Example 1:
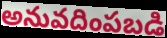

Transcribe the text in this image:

అనువదింపబడి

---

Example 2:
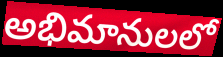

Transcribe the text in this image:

అభిమానులలో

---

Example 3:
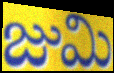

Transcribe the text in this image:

జుమి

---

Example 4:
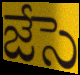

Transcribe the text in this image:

జేసె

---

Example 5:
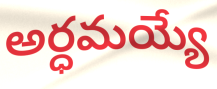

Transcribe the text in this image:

అర్ధమయ్యే